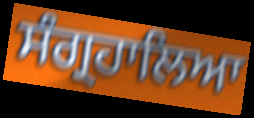
ਸੰਗ੍ਰਹਾਲਿਆ